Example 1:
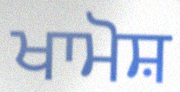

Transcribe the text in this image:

ਖਾਮੋਸ਼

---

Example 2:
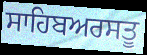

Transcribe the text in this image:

ਸਾਹਿਬਅਰਸਤੂ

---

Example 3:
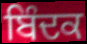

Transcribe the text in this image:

ਬਿੰਦਕ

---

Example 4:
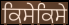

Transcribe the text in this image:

ਕਿਸੇਕਿਸੇ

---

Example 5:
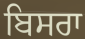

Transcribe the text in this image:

ਬਿਸਰਾ